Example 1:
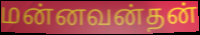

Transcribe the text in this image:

மன்னவன்தன்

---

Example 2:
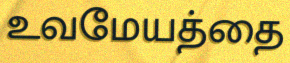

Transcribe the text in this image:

உவமேயத்தை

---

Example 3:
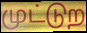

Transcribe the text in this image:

முட்டுற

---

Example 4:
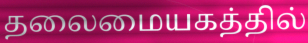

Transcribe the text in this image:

தலைமையகத்தில்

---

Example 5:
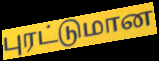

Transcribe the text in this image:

புரட்டுமான